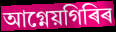
আগ্নেয়গিৰিৰ